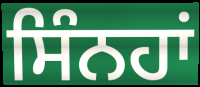
ਸਿੰਨਹਾਂ